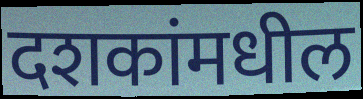
दशकांमधील